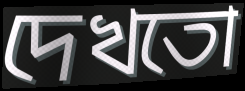
দেখতো